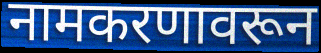
नामकरणावरून